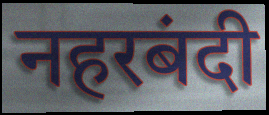
नहरबंदी